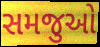
સમજુઓ